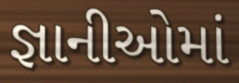
જ્ઞાનીઓમાં